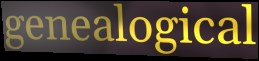
genealogical